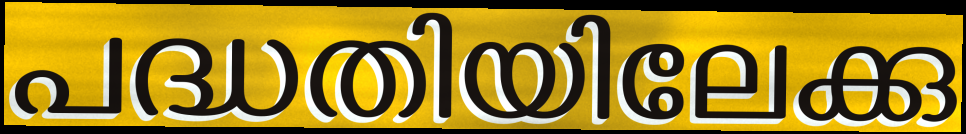
പദ്ധതിയിലേക്കു